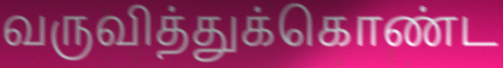
வருவித்துக்கொண்ட